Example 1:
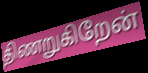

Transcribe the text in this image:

திணறுகிறேன்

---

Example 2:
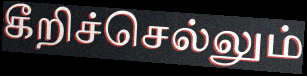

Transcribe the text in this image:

கீறிச்செல்லும்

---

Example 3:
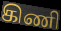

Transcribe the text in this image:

கிணி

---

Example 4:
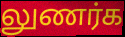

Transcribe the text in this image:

லுணர்க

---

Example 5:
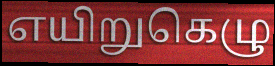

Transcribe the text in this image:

எயிறுகெழு